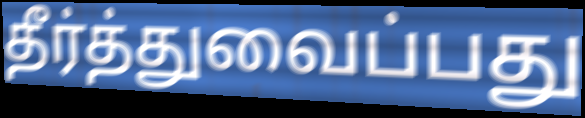
தீர்த்துவைப்பது